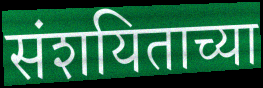
संशयिताच्या